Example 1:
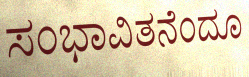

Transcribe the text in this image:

ಸಂಭಾವಿತನೆಂದೂ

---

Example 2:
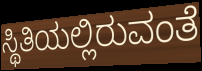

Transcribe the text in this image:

ಸ್ಥಿತಿಯಲ್ಲಿರುವಂತೆ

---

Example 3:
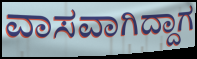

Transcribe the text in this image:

ವಾಸವಾಗಿದ್ದಾಗ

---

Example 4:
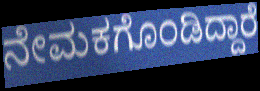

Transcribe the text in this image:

ನೇಮಕಗೊಂಡಿದ್ದಾರೆ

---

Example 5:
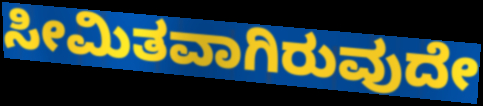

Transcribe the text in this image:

ಸೀಮಿತವಾಗಿರುವುದೇ